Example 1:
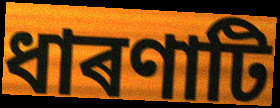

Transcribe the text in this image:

ধাৰণাটি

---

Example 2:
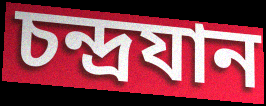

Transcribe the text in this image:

চন্দ্ৰযান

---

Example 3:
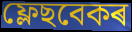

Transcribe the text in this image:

ফ্লেছবেকৰ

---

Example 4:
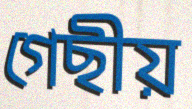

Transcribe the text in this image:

গেছীয়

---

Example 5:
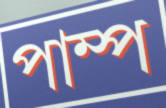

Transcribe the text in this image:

পাম্প